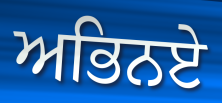
ਅਭਿਨਏ